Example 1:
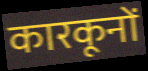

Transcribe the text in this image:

कारकूनों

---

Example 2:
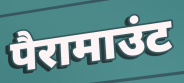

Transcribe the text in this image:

पैरामाउंट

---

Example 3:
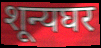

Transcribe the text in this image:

शून्यघर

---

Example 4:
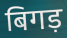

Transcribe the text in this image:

बिगड़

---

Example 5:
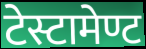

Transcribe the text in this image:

टेस्टामेण्ट